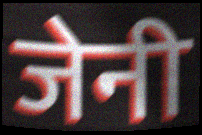
जेनी